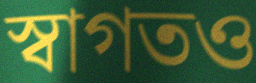
স্বাগতও